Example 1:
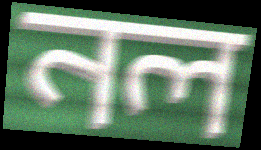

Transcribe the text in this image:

নল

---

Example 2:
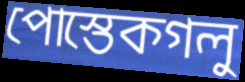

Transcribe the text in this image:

পোস্তেকগলু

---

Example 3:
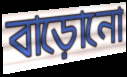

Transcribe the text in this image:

বাড়োনো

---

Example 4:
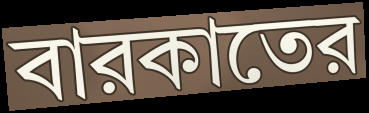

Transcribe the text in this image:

বারকাতের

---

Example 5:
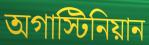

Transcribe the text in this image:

অগাস্টিনিয়ান